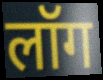
लॉग